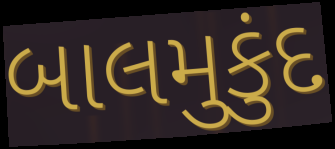
બાલમુકુંદ